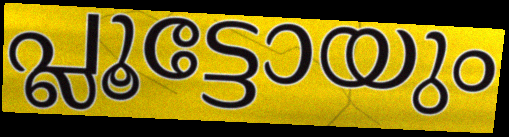
പ്ലൂട്ടോയും